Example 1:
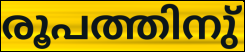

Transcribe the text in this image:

രൂപത്തിനു്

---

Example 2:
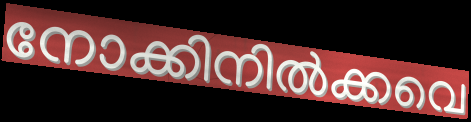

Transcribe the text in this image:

നോക്കിനിൽക്കവെ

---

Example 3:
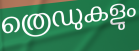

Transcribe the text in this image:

ത്രെഡുകളും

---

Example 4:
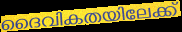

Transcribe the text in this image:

ദൈവികതയിലേക്ക്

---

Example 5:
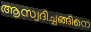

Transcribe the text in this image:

ആസ്വദിച്ചങ്ങിനെ